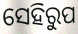
ସେହିରୁପ